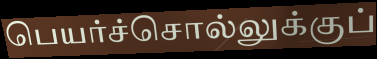
பெயர்ச்சொல்லுக்குப்